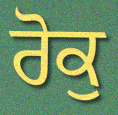
ਰੋਕੁ